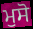
ਮੁਸੋ